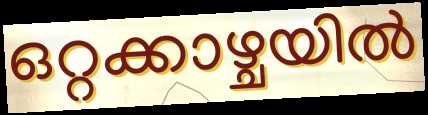
ഒറ്റക്കാഴ്ചയിൽ